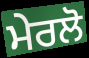
ਮੇਰਲੋ